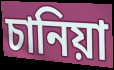
চানিয়া